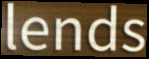
lends